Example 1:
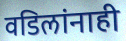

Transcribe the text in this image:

वडिलांनाही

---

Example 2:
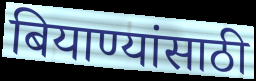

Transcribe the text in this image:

बियाण्यांसाठी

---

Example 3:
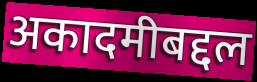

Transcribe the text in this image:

अकादमीबद्दल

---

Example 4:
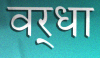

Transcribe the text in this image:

वर्धा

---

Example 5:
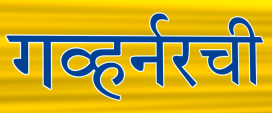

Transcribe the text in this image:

गव्हर्नरची